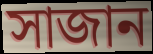
সাজান